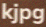
kjpg